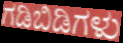
ಗಡಿಬಿಡಿಗಳು